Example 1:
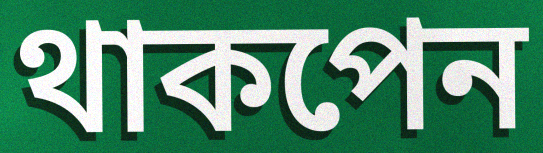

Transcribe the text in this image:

থাকপেন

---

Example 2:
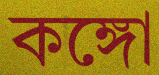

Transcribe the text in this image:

কঙ্গো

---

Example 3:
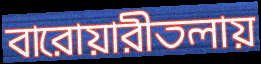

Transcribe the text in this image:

বারোয়ারীতলায়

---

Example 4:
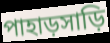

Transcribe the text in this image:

পাহাড়সাড়ি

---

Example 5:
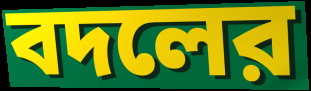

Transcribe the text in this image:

বদলের